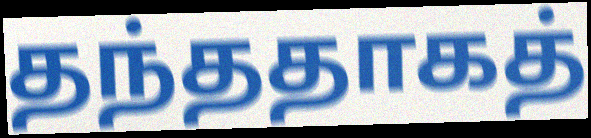
தந்ததாகத்